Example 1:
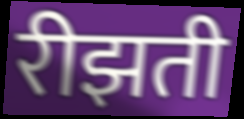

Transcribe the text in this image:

रीझती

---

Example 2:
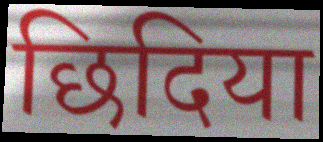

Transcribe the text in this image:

छिदिया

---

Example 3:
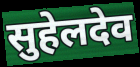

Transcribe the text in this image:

सुहेलदेव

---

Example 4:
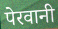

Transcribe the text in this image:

पेरवानी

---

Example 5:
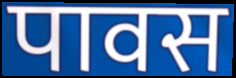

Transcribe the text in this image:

पावस